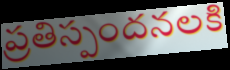
ప్రతిస్పందనలకి